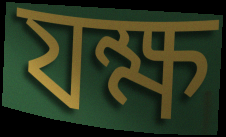
যক্ষ